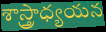
శాస్త్రాధ్యయన